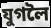
যুগলৈ